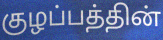
குழப்பத்தின்